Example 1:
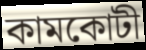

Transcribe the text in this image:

কামকোটী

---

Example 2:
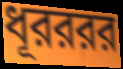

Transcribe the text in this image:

ধূরররর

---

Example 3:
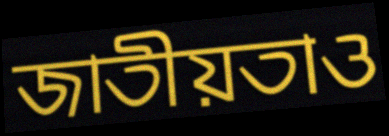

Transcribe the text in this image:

জাতীয়তাও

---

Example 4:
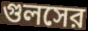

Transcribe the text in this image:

গুলসের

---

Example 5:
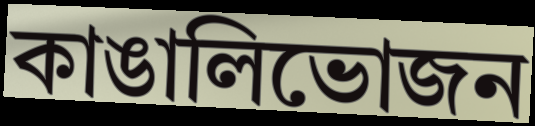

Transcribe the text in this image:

কাঙালিভোজন